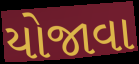
યોજાવા